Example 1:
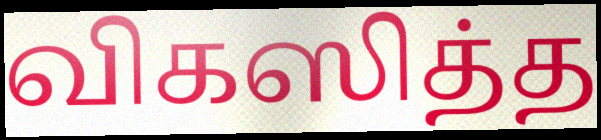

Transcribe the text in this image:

விகஸித்த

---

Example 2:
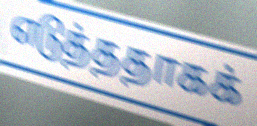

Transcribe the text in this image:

எடுத்ததாகக்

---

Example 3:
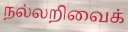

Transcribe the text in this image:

நல்லறிவைக்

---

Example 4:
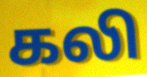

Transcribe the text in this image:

கலி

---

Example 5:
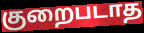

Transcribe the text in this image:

குறைபடாத